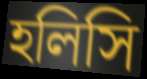
হলিসি